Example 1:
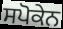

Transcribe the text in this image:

ਸਪੋਕੇਨ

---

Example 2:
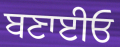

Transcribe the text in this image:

ਬਣਾਈਓ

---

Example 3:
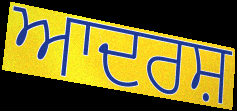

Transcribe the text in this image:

ਆਦਰਸ਼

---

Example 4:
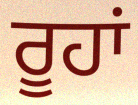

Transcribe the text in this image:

ਰੂਹਾਂ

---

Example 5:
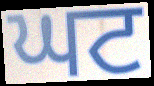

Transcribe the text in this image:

ਘਟ